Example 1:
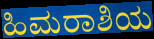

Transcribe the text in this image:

ಹಿಮರಾಶಿಯ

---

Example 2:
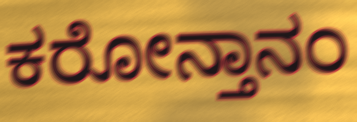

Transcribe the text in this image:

ಕರೋನ್ತಾನಂ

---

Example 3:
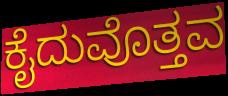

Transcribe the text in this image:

ಕೈದುವೊತ್ತವ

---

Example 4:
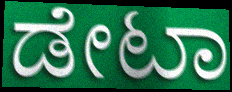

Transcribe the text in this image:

ಡೇಟಾ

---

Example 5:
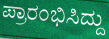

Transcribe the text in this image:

ಪ್ರಾರಂಭಿಸಿದ್ದು